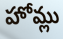
హోమ్లు